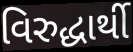
વિરુદ્ધાર્થી